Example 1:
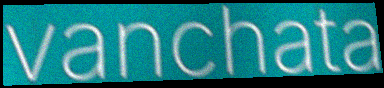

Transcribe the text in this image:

vanchata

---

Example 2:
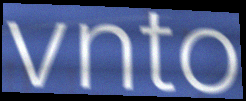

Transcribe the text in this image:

vnto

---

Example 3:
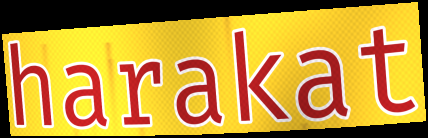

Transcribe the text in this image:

harakat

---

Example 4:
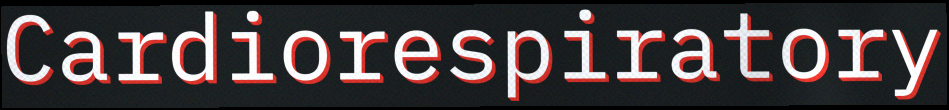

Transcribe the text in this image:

Cardiorespiratory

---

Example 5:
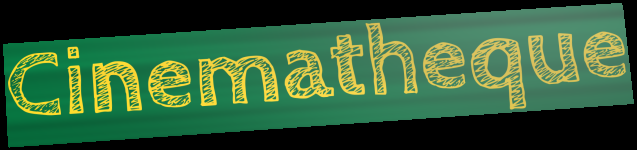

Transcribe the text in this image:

Cinematheque